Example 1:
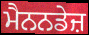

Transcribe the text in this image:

ਮੈਨਨਡੇਜ਼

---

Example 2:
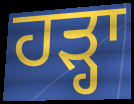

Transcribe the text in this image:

ਹੜ੍ਹਾ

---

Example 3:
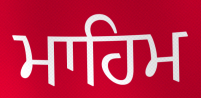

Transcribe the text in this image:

ਮਾਹਿਮ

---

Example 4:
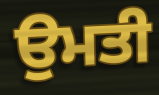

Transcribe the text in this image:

ਉਮਤੀ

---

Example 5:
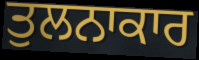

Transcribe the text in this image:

ਤੁਲਨਾਕਾਰ